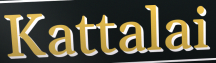
Kattalai